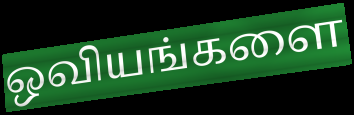
ஒவியங்களை